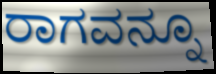
ರಾಗವನ್ನೂ